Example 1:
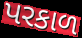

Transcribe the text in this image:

પરકાળ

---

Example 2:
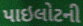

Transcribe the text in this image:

પાઇલોટની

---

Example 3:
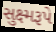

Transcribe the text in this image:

સુક્ષ્મરૂપે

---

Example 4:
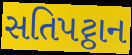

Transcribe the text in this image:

સતિપટ્ઠાન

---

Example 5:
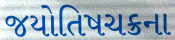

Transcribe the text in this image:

જયોતિષચક્રના